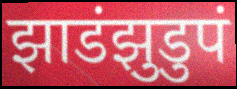
झाडंझुडुपं